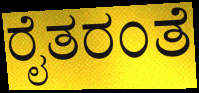
ರೈತರಂತೆ